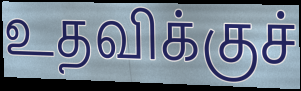
உதவிக்குச்